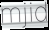
mjid